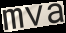
mva